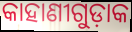
କାହାଣୀଗୁଡ଼ାକ